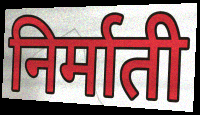
निर्माती